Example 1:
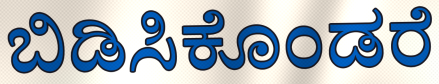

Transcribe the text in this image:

ಬಿಡಿಸಿಕೊಂಡರೆ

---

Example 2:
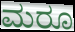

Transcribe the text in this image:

ಮರೂ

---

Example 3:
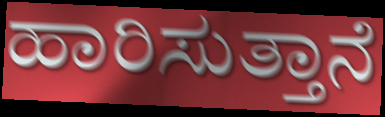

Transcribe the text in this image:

ಹಾರಿಸುತ್ತಾನೆ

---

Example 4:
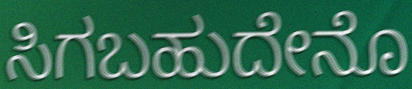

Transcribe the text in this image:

ಸಿಗಬಹುದೇನೊ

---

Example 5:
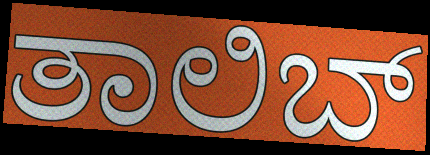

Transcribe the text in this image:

ತಾಲಿಬ್